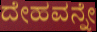
ದೇಹವನ್ನೇ